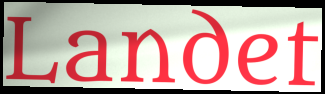
Landet